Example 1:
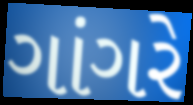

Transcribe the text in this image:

ગાંગરે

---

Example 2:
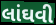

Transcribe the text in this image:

લાંઘવી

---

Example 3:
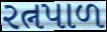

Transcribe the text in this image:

રત્નપાળ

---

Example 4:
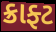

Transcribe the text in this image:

ક્રાફ્ટ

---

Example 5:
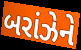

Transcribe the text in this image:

બરાંઝેને